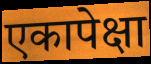
एकापेक्षा